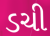
ડચી